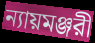
ন্যায়মঞ্জরী